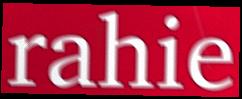
rahie